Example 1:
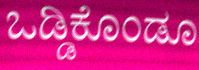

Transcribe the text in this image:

ಒಡ್ಡಿಕೊಂಡೂ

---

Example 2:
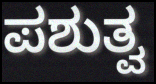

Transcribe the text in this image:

ಪಶುತ್ವ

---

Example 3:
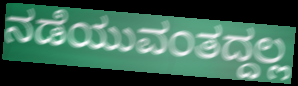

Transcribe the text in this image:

ನಡೆಯುವಂತದ್ದಲ್ಲ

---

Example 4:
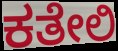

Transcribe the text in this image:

ಕತೇಲಿ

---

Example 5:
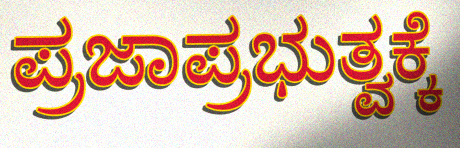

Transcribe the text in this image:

ಪ್ರಜಾಪ್ರಭುತ್ವಕ್ಕೆ